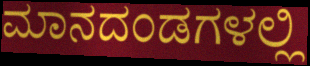
ಮಾನದಂಡಗಳಲ್ಲಿ